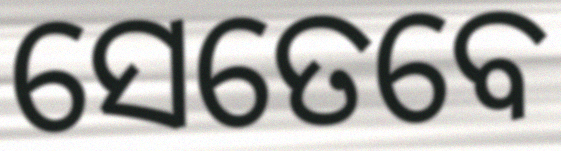
ସେତେବେ